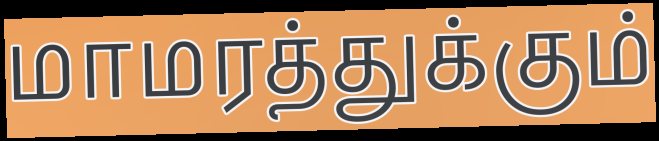
மாமரத்துக்கும்